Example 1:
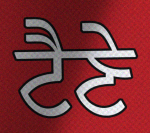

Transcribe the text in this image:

ਟੈਣੇ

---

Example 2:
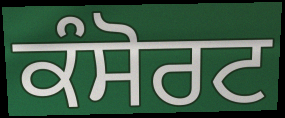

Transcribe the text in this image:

ਕੰਸੋਰਟ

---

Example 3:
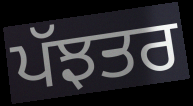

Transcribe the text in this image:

ਪੱਝਤਰ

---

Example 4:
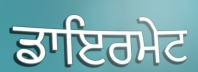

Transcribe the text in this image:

ਡਾਇਰਮੇਟ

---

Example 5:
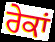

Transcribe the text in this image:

ਰੇਕਾਂ